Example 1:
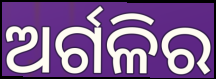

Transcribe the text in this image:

ଅର୍ଗଳିର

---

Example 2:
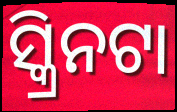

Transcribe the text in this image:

ସ୍କ୍ରିନଟା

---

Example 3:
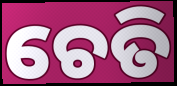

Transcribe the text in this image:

ଚେତି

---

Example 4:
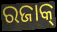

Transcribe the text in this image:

ରଜାକ୍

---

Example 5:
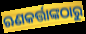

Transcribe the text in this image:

ଋଣକର୍ତ୍ତାଙ୍କଠାରୁ